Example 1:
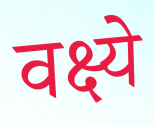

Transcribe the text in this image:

वक्ष्ये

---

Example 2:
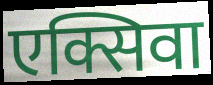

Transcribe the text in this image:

एक्सिवा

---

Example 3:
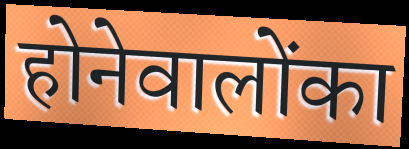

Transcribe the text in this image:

होनेवालोंका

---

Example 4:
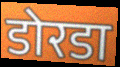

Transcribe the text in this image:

डोरडा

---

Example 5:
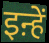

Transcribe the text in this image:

इऩ्हें